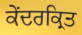
ਕੇਂਦਰਕ੍ਰਿਤ